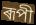
ৰূপী